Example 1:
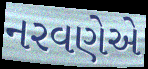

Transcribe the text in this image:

નરવણેએ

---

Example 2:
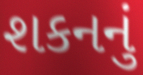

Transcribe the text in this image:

શકનનું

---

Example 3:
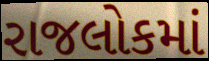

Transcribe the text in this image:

રાજલોકમાં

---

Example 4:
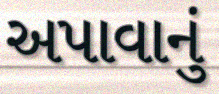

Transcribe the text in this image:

અપાવાનું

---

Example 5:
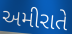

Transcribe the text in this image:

અમીરાતે